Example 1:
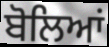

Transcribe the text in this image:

ਬੋਲਿਆਂ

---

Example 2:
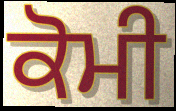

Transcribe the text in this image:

ਕੋਮੀ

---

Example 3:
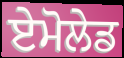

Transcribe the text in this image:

ਏਮੋਲੇਡ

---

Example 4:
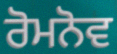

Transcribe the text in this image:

ਰੋਮਨੋਵ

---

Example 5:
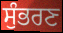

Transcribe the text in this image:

ਸੁੰਭਰਣ